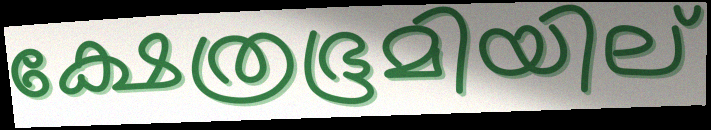
ക്ഷേത്രഭൂമിയില്